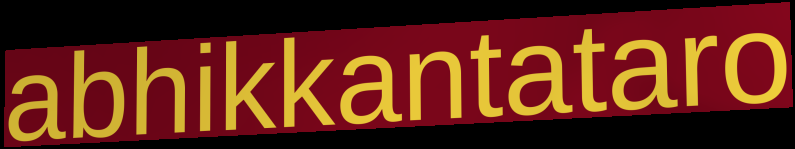
abhikkantataro